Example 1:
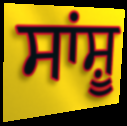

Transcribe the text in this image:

ਸਾਂਸ਼ੂ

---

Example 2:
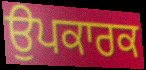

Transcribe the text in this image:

ਉਪਕਾਰਕ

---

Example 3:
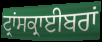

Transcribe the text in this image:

ਟ੍ਰਾਂਸਕ੍ਰਾਈਬਰਾਂ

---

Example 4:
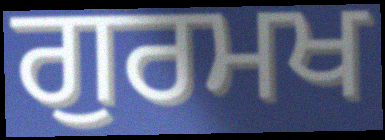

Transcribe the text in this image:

ਗੁਰਮਖ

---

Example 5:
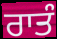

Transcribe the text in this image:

ਰਾਤੰ